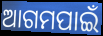
ଆଗମପାଇଁ